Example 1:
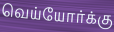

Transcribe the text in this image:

வெய்யோர்க்கு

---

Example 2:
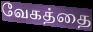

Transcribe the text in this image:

வேகத்தை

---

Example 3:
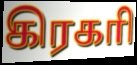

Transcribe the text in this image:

கிரகரி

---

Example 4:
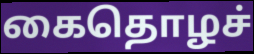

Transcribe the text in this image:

கைதொழச்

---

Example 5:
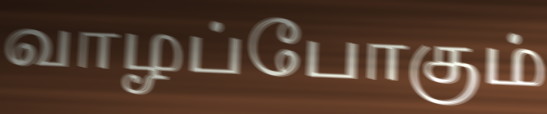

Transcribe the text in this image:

வாழப்போகும்